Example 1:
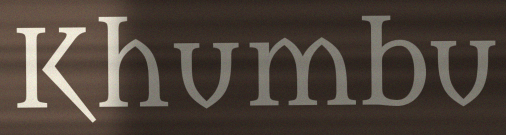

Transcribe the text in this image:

Khumbu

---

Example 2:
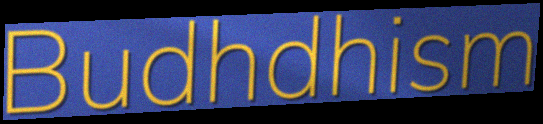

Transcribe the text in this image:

Budhdhism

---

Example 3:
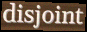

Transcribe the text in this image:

disjoint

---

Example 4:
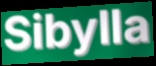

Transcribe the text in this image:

Sibylla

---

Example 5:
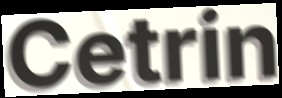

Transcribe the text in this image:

Cetrin